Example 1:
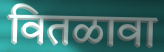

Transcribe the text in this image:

वितळावा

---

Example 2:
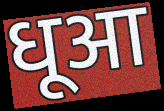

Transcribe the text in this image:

धूआ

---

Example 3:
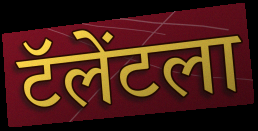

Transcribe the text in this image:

टॅलेंटला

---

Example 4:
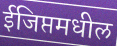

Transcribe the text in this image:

ईजिप्तमधील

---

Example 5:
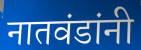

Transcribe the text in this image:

नातवंडांनी